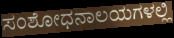
ಸಂಶೋಧನಾಲಯಗಳಲ್ಲಿ